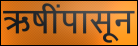
ऋषींपासून